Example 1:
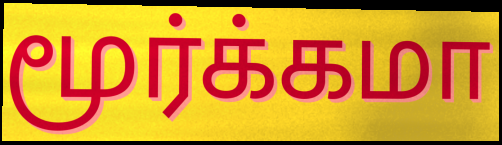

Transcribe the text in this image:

மூர்க்கமா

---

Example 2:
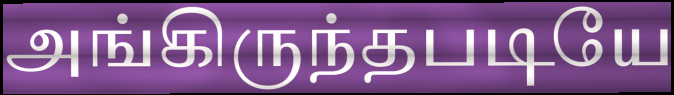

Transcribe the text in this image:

அங்கிருந்தபடியே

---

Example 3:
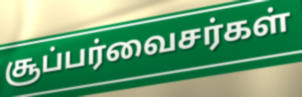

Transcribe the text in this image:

சூப்பர்வைசர்கள்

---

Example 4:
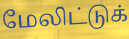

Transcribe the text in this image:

மேலிட்டுக்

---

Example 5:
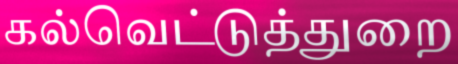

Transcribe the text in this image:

கல்வெட்டுத்துறை